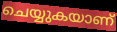
ചെയ്യുകയാണ്